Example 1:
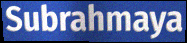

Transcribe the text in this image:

Subrahmaya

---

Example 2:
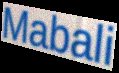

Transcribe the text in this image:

Mabali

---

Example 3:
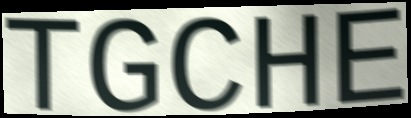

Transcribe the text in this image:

TGCHE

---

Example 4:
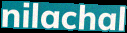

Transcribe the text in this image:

nilachal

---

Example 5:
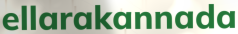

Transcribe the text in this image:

ellarakannada